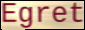
Egret